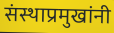
संस्थाप्रमुखांनी